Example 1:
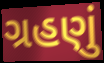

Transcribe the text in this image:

ગ્રહણું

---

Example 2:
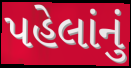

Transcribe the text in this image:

પહેલાંનું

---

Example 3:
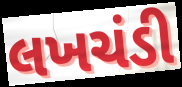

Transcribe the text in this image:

લખચંડી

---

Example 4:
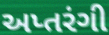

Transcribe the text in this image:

અપ્તરંગી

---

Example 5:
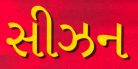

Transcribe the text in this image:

સીઝન